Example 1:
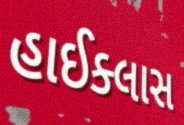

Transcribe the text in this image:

હાઈક્લાસ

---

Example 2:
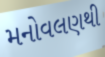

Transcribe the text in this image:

મનોવલણથી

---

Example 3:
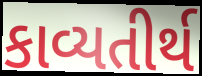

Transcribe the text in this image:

કાવ્યતીર્થ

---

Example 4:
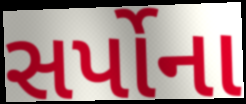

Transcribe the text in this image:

સર્પોના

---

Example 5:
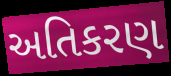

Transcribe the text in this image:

અતિકરણ